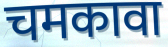
चमकावा